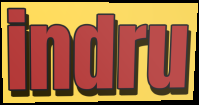
indru